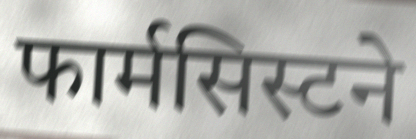
फार्मसिस्टने